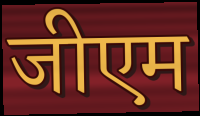
जीएम